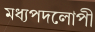
মধ্যপদলোপী